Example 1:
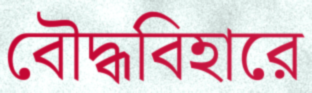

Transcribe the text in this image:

বৌদ্ধবিহারে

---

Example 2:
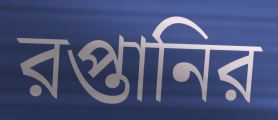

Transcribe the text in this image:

রপ্তানির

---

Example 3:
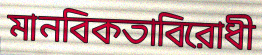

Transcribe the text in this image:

মানবিকতাবিরোধী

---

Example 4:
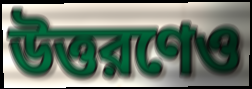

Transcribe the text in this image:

উত্তরণেও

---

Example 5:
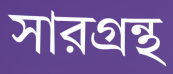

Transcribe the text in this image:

সারগ্রন্থ